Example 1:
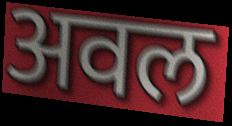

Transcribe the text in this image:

अवल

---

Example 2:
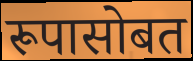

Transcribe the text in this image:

रूपासोबत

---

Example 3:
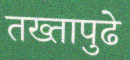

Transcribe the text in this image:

तख्तापुढे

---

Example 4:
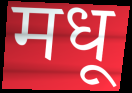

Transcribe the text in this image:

मधू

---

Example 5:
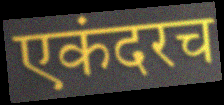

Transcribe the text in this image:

एकंदरच